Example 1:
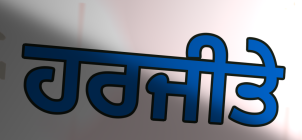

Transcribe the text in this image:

ਹਰਜੀਤੇ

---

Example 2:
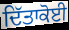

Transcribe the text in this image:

ਦਿੱਤਾਕੋਈ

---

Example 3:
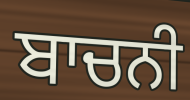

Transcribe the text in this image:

ਬਾਚਨੀ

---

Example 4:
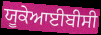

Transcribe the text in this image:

ਯੂਕੇਆਈਬੀਸੀ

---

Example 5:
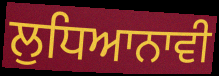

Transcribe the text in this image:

ਲੁਧਿਆਨਾਵੀ